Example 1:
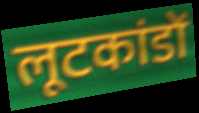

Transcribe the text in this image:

लूटकांडों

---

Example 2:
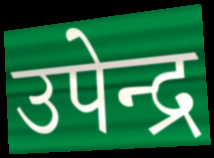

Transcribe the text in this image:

उपेन्द्र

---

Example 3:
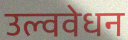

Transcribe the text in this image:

उल्ववेधन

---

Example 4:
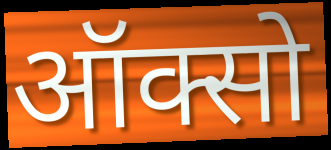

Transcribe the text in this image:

ऑक्सो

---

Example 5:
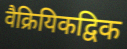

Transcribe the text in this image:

वैक्रियिकद्विक